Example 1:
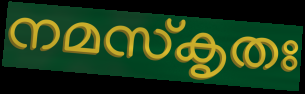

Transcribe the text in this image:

നമസ്കൃതഃ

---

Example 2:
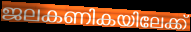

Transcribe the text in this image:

ജലകണികയിലേക്ക്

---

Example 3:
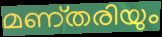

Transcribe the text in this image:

മണ്തരിയും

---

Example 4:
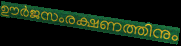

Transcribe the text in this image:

ഊർജസംരക്ഷണത്തിനും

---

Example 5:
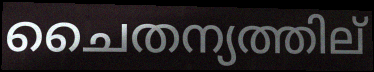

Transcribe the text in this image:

ചൈതന്യത്തില്